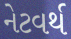
નેટવર્થ